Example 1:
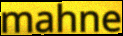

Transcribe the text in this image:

mahne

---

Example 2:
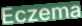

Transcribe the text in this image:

Eczema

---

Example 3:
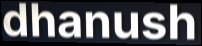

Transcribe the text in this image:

dhanush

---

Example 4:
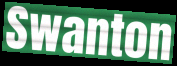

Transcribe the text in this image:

Swanton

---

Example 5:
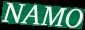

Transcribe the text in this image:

NAMO